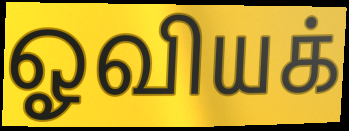
ஓவியக்